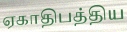
ஏகாதிபத்திய